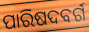
ପାରିଷଦବର୍ଗ